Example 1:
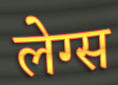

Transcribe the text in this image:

लेग्स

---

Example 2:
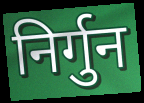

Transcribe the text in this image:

निर्गुन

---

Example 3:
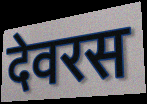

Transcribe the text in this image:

देवरस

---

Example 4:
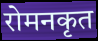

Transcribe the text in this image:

रोमनकृत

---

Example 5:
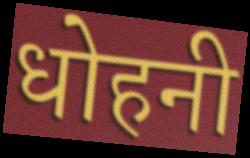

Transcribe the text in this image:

धोहनी